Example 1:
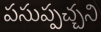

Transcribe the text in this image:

పసుప్పచ్చని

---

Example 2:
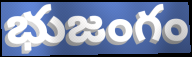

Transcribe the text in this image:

భుజంగం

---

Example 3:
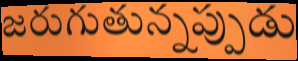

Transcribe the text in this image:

జరుగుతున్నప్పుడు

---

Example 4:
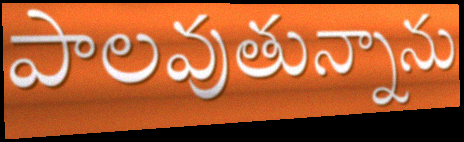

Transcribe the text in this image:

పాలవుతున్నాను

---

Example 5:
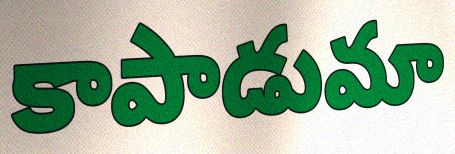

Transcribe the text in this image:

కాపాడుమా